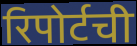
रिपोर्टची